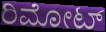
ರಿಮೋಟ್